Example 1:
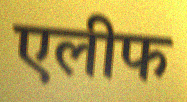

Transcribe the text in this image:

एलीफ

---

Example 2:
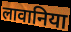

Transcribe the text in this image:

लावानिया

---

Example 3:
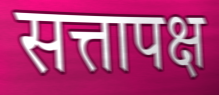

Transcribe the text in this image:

सत्तापक्ष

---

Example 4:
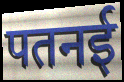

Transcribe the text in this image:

पतनई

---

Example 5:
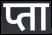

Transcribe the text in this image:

प्ता